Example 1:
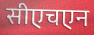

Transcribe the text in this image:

सीएचएन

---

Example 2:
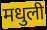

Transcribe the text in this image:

मधुली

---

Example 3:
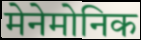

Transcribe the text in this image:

मेनेमोनिक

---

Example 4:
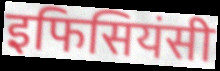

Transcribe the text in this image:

इफिसियंसी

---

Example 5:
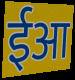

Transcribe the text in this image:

ईआ